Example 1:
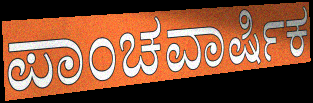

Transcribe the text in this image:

ಪಾಂಚವಾರ್ಷಿಕ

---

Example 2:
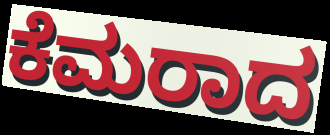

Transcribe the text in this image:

ಕೆಮರಾದ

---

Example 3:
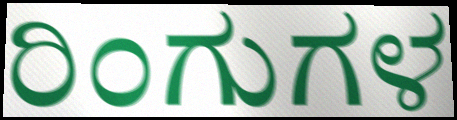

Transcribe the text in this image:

ರಿಂಗುಗಳ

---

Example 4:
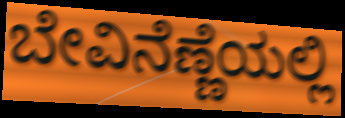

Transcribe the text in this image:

ಬೇವಿನೆಣ್ಣೆಯಲ್ಲಿ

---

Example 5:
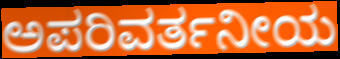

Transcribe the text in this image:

ಅಪರಿವರ್ತನೀಯ